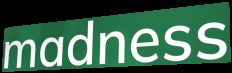
madness